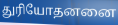
துரியோதனனை